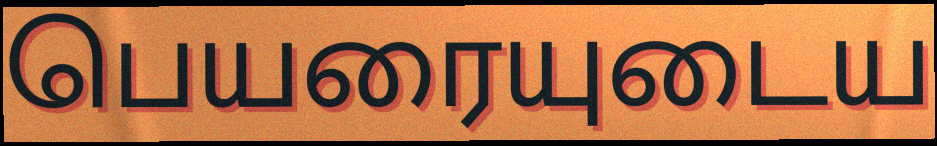
பெயரையுடைய